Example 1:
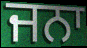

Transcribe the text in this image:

ਜਨਾ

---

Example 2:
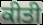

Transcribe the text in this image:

ਕੀਤੀ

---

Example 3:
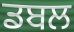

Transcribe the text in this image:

ਡਬਲ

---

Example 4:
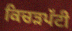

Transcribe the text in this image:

ਕਿਚੜਪੱਟੀ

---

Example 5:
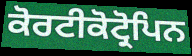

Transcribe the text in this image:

ਕੋਰਟੀਕੋਟ੍ਰੋਪਿਨ